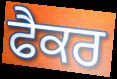
ਫੈਕਰ